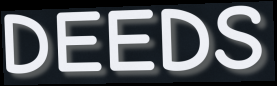
DEEDS